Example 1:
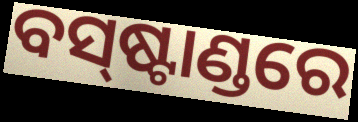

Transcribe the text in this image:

ବସ୍‍ଷ୍ଟାଣ୍ଡରେ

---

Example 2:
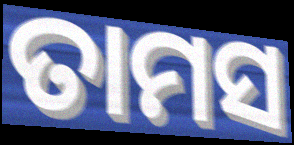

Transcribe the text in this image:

ତାମସ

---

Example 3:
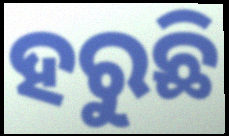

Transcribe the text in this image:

ହରୁଛି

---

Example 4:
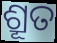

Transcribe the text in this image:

ଶ୍ରୂତ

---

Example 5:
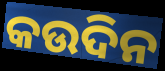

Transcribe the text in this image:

କଉଦିନ